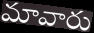
మావారు